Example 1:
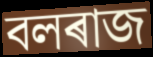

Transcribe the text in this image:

বলৰাজ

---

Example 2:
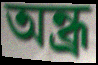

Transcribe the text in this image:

অন্ধ্ৰ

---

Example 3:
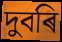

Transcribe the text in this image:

দুবৰি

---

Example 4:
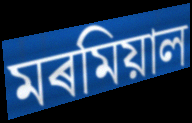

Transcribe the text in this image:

মৰমিয়াল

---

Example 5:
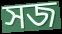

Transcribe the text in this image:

সজ